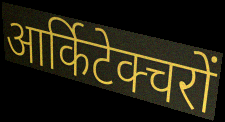
आर्किटेक्चरों